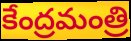
కేంద్రమంత్రి